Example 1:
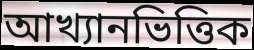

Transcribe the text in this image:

আখ্যানভিত্তিক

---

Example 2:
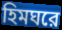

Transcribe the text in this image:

হিমঘরে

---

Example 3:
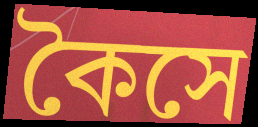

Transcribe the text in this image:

কৈসে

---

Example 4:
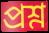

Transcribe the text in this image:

প্রশ্ন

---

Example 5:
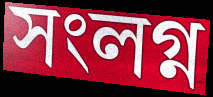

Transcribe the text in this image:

সংলগ্ন